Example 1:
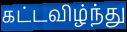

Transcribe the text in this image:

கட்டவிழ்ந்து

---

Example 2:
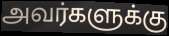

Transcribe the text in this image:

அவர்களுக்கு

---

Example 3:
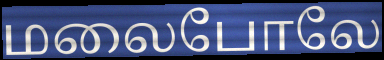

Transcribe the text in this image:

மலைபோலே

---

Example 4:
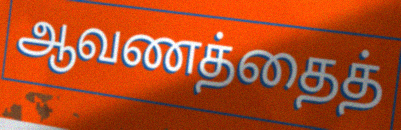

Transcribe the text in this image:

ஆவணத்தைத்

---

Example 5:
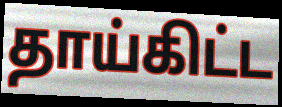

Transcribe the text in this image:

தாய்கிட்ட